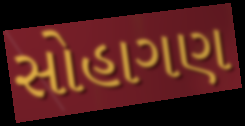
સોહાગણ